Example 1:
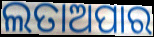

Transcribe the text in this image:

ଲତାଅପାର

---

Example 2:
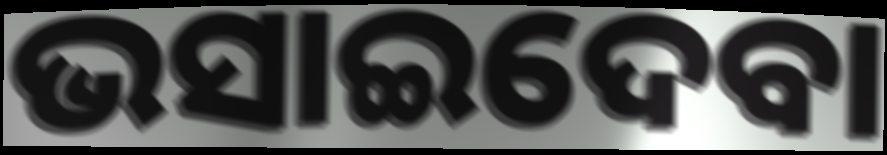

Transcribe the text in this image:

ଭସାଇଦେବା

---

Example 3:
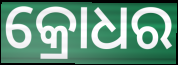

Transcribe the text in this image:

କ୍ରୋଧର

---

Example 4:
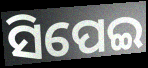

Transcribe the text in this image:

ସିପେଇ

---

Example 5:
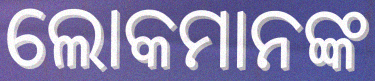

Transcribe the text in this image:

ଲୋକମାନଙ୍କ